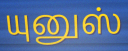
யுனுஸ்